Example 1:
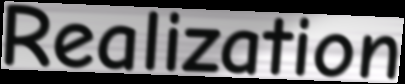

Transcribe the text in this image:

Realization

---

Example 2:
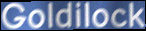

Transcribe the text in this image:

Goldilock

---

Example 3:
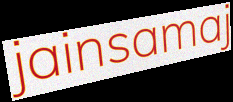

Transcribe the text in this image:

jainsamaj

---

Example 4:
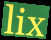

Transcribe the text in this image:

lix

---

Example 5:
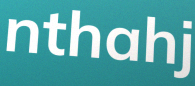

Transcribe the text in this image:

nthahj